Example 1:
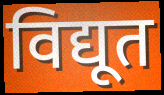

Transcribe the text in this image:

विद्यूत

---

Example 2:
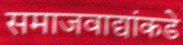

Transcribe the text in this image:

समाजवाद्यांकडे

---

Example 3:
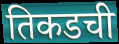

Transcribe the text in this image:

तिकडची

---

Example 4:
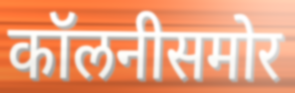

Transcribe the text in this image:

कॉलनीसमोर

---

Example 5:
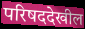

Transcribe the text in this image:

परिषददेखील